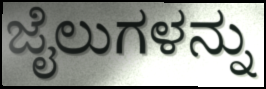
ಜೈಲುಗಳನ್ನು